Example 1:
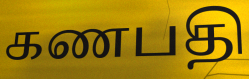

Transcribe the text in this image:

கணபதி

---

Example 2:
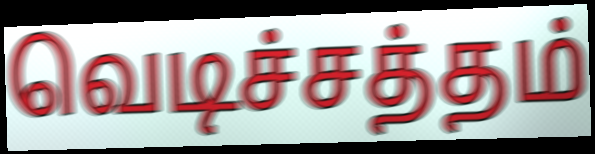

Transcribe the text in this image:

வெடிச்சத்தம்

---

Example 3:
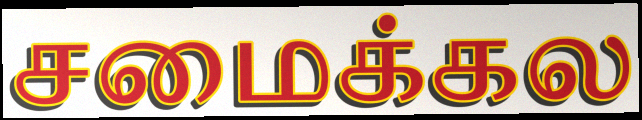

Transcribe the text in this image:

சமைக்கல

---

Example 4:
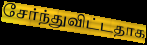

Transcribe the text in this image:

சேர்ந்துவிட்டதாக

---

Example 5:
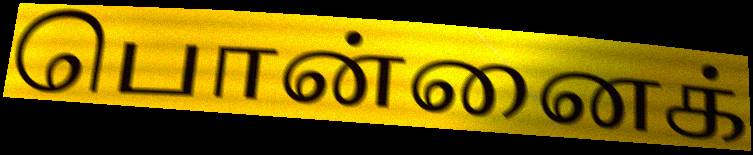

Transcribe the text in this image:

பொன்னைக்